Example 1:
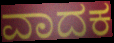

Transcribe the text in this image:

ವಾದಕ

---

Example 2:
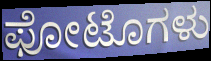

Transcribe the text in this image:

ಫೋಟೊಗಳು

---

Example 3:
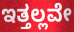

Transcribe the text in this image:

ಇತ್ತಲ್ಲವೇ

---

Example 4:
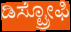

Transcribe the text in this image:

ಡಿಸ್ಟ್ರೋಫಿ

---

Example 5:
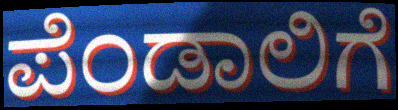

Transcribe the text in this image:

ಪೆಂಡಾಲಿಗೆ